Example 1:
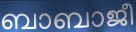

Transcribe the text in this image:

ബാബാജീ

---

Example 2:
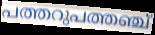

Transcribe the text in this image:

പത്തറുപത്തഞ്ച്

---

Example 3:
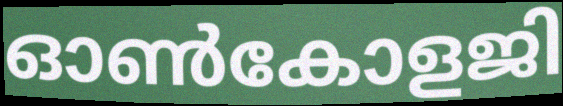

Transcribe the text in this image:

ഓൺകോളജി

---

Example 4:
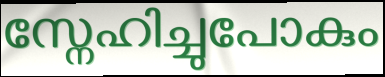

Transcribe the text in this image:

സ്നേഹിച്ചുപോകും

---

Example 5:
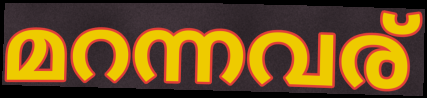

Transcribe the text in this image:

മറന്നവര്